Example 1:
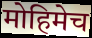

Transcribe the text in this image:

मोहिमेच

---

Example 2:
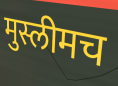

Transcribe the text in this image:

मुस्लीमच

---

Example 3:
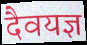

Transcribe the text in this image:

दैवयज्ञ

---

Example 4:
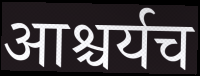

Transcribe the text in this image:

आश्चर्यच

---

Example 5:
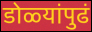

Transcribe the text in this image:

डोळ्यांपुढं